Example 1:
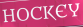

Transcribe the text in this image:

HOCKEY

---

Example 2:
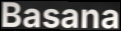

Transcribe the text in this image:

Basana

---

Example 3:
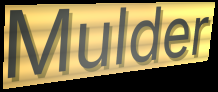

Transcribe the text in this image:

Mulder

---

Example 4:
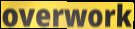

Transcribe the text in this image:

overwork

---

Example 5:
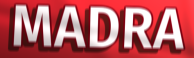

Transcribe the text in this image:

MADRA